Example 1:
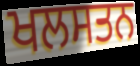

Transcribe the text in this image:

ਖਲਸਤਨ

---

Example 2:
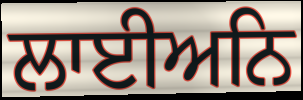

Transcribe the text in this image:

ਲਾਈਅਨਿ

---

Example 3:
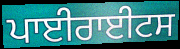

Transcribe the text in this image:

ਪਾਈਰਾਈਟਸ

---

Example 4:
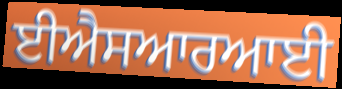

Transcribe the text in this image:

ਈਐਸਆਰਆਈ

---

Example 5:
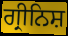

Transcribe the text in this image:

ਗ੍ਰੀਨਿਸ਼